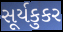
સૂર્યકુકર